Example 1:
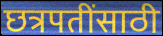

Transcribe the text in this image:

छत्रपतींसाठी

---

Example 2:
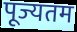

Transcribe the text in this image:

पूज्यतम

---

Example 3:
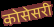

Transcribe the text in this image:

कोसेसरी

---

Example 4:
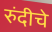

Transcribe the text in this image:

रुंदीचे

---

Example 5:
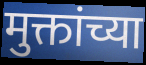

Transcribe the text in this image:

मुक्तांच्या